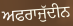
ਅਫਰਾਜੁੱਦੀਨ